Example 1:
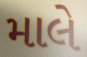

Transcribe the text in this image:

માલે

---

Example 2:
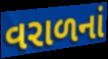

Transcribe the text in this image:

વરાળનાં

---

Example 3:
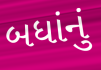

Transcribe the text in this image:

બધાંનું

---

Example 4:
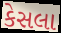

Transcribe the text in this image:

કેસલા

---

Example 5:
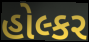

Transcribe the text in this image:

હોલ્કર